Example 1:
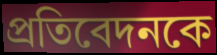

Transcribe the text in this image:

প্রতিবেদনকে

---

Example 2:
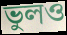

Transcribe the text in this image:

ভুলও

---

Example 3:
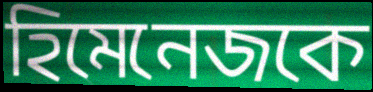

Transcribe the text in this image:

হিমেনেজকে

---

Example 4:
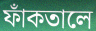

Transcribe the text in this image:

ফাঁকতালে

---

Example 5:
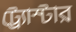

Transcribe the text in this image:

ট্র্যোস্টার